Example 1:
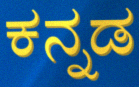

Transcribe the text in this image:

ಕನ್ನಡ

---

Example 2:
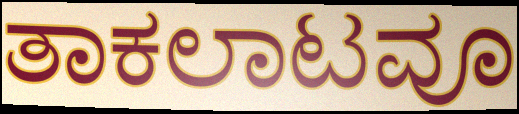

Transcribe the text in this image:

ತಾಕಲಾಟವೂ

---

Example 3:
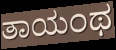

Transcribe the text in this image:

ತಾಯಂಥ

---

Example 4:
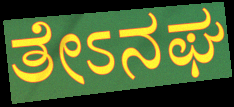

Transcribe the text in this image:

ತೇಽನಘ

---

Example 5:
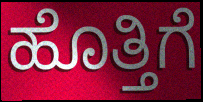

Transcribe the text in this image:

ಹೊತ್ತಿಗೆ